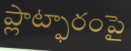
ప్లాట్ఫారంపై